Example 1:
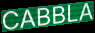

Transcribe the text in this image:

CABBLA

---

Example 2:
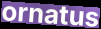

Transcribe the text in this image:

ornatus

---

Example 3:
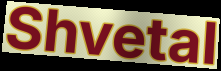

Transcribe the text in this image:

Shvetal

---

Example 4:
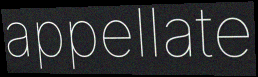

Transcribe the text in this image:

appellate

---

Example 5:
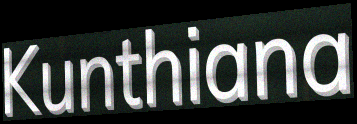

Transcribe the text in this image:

Kunthiana